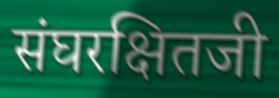
संघरक्षितजी